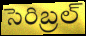
సెరిబ్రల్